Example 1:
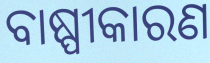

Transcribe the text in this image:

ବାଷ୍ପୀକାରଣ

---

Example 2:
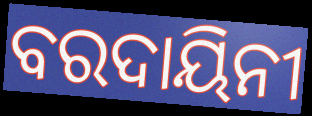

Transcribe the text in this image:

ବରଦାୟିନୀ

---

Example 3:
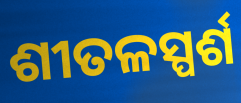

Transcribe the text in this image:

ଶୀତଳସ୍ପର୍ଶ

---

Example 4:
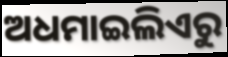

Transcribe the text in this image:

ଅଧମାଇଲିଏରୁ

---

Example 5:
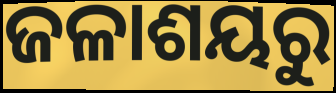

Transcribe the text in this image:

ଜଳାଶୟରୁ